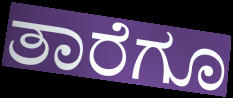
ತಾರೆಗೂ